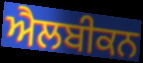
ਐਲਬੀਕਨ